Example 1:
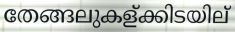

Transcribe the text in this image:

തേങ്ങലുകള്ക്കിടയില്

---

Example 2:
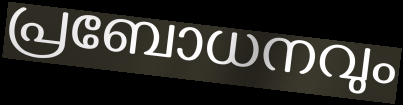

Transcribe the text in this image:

പ്രബോധനവും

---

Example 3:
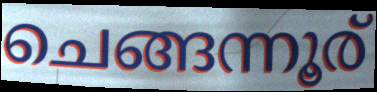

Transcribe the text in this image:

ചെങ്ങന്നൂര്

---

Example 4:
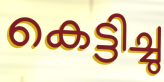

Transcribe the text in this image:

കെട്ടിച്ചു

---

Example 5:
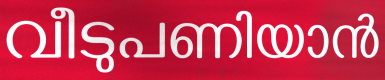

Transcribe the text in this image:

വീടുപണിയാൻ